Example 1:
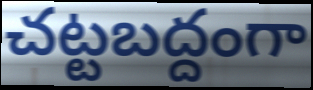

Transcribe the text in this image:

చట్టబద్దంగా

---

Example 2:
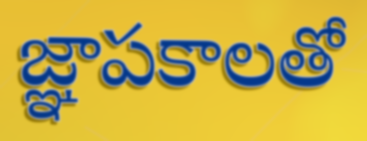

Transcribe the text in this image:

జ్ఞాపకాలతో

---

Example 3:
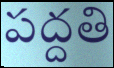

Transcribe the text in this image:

పద్దతి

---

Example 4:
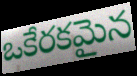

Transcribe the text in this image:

ఒకేరకమైన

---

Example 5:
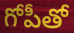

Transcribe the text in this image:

గోపీతో